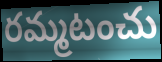
రమ్మటంచు